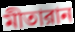
মীতারান